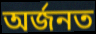
অৰ্জনত